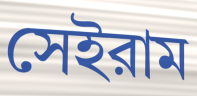
সেইরাম